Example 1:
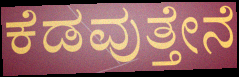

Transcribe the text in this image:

ಕೆಡವುತ್ತೇನೆ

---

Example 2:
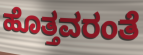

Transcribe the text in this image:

ಹೊತ್ತವರಂತೆ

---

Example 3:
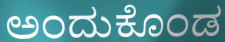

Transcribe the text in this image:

ಅಂದುಕೊಂಡ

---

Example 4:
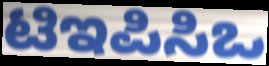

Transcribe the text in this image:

ಟಿಇಪಿಸಿಒ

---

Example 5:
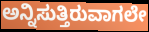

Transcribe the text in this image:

ಅನ್ನಿಸುತ್ತಿರುವಾಗಲೇ